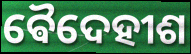
ଵୈଦେହୀଶ